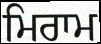
ਮਿਰਾਮ